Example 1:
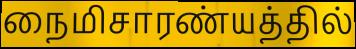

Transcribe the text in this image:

நைமிசாரண்யத்தில்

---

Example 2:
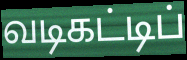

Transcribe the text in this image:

வடிகட்டிப்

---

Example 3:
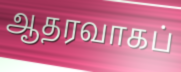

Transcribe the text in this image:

ஆதரவாகப்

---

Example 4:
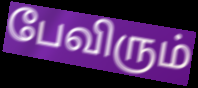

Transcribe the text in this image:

பேவிரும்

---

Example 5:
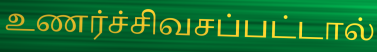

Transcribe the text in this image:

உணர்ச்சிவசப்பட்டால்